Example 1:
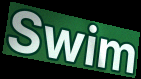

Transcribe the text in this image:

Swim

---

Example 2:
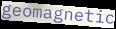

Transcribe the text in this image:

geomagnetic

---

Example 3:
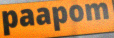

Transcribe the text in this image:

paapom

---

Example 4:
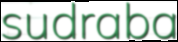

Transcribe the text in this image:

sudraba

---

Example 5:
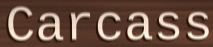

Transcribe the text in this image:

Carcass